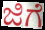
ಜಿಗೆ